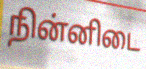
நின்னிடை